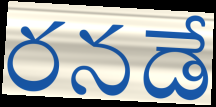
రనడే